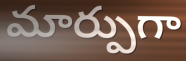
మార్పుగా